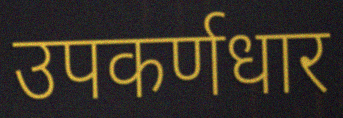
उपकर्णधार